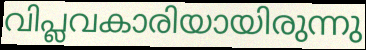
വിപ്ലവകാരിയായിരുന്നു